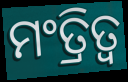
ମଂତ୍ରିତ୍ୱ